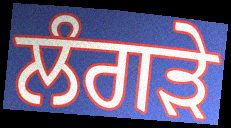
ਲੰਗੜੇ